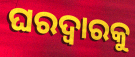
ଘରଦ୍ୱାରକୁ